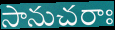
సానుచరాః